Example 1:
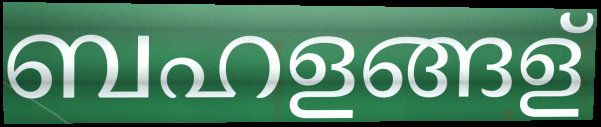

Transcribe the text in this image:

ബഹളങ്ങള്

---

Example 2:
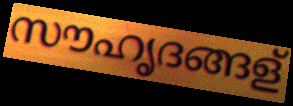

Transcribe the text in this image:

സൗഹൃദങ്ങള്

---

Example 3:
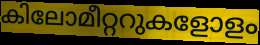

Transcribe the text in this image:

കിലോമീറ്ററുകളോളം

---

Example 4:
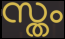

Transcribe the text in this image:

സ്തം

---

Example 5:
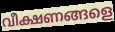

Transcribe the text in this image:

വീക്ഷണങ്ങളെ